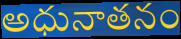
అధునాతనం